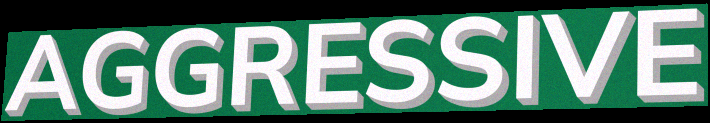
AGGRESSIVE